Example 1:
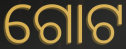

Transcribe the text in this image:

ଗୋଟ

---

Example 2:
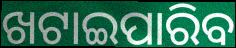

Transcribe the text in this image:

ଖଟାଇପାରିବ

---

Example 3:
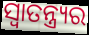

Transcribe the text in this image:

ସ୍ଵାତନ୍ତ୍ର୍ୟର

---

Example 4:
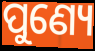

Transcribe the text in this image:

ପୁଣ୍ୟେ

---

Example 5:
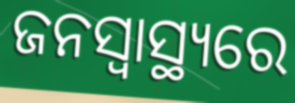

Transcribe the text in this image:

ଜନସ୍ଵାସ୍ଥ୍ୟରେ